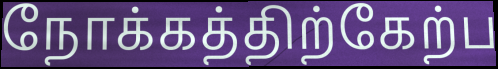
நோக்கத்திற்கேற்ப